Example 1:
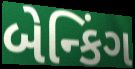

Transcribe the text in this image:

બેન્કિંગ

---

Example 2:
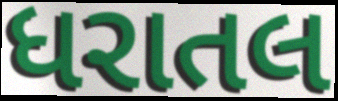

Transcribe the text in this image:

ધરાતલ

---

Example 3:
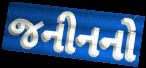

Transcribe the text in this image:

જનીનનો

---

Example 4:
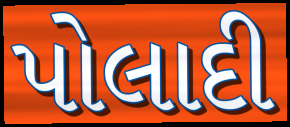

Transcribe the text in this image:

પોલાદી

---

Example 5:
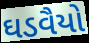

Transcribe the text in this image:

ઘડવૈયો